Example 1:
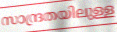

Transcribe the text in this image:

സാന്ദ്രതയിലുള്ള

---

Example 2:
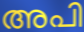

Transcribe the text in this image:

അപി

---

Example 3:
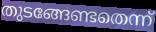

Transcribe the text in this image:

തുടങ്ങേണ്ടതെന്ന്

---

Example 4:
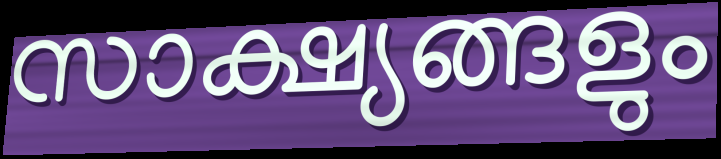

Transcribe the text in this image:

സാക്ഷ്യങ്ങളും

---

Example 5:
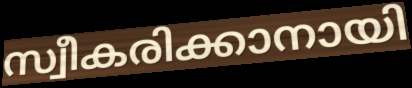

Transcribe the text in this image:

സ്വീകരിക്കാനായി